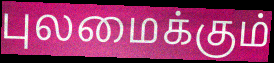
புலமைக்கும்